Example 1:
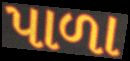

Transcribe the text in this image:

પાળા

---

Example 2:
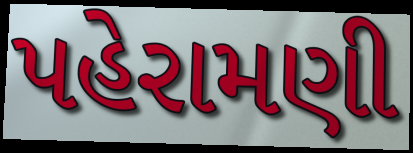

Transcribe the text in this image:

પહેરામણી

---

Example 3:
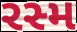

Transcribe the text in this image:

રસ્મ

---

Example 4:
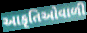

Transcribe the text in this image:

આકૃતિઓવાળી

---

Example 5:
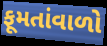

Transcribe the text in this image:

ફૂમતાંવાળો